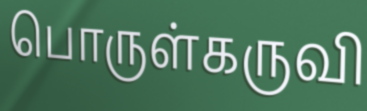
பொருள்கருவி